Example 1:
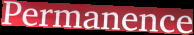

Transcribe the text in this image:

Permanence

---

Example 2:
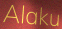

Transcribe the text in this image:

Alaku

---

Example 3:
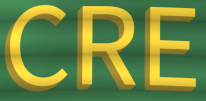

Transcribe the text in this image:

CRE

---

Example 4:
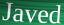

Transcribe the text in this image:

Javed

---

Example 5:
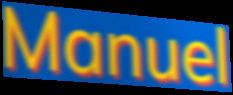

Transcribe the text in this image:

Manuel